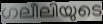
ഗലീലിയുടെ